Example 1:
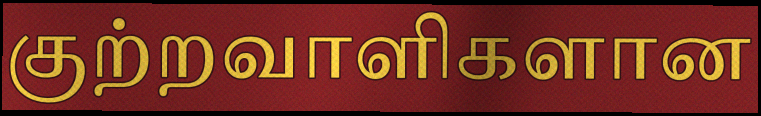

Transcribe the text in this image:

குற்றவாளிகளான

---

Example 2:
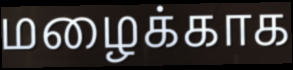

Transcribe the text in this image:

மழைக்காக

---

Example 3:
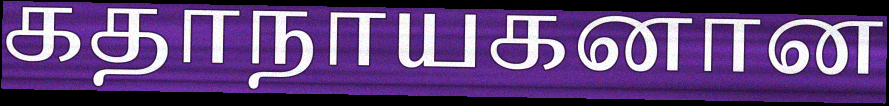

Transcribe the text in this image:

கதாநாயகனான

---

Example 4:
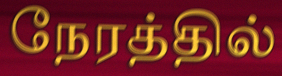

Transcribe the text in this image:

நேரத்தில்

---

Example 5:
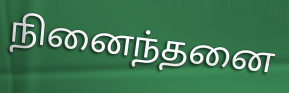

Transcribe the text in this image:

நினைந்தனை